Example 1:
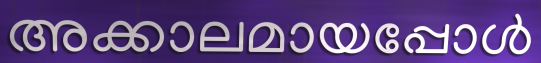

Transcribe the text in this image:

അക്കാലമായപ്പോൾ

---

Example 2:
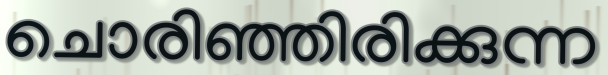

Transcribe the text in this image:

ചൊരിഞ്ഞിരിക്കുന്ന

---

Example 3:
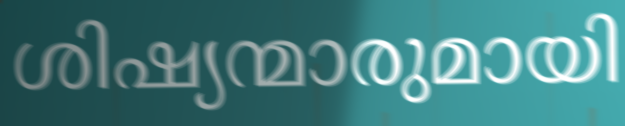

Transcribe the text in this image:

ശിഷ്യന്മാരുമായി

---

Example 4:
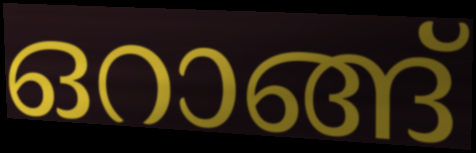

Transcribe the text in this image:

ഒറാങ്ങ്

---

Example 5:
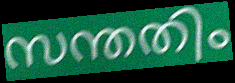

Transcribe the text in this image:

സന്തതിം